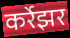
कर्रेझर